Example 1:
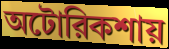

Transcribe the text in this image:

অটোরিকশায়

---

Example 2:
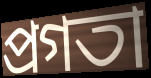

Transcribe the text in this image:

প্রগতা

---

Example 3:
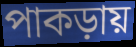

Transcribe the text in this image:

পাকড়ায়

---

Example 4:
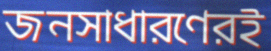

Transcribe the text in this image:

জনসাধারণেরই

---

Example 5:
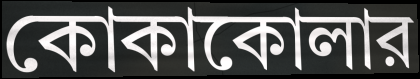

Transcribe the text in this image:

কোকাকোলার